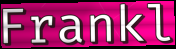
Frankl